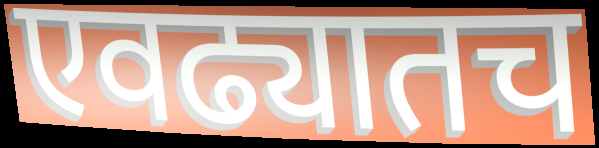
एवढ्यातच